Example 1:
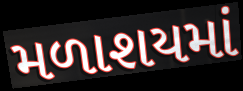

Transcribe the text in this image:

મળાશયમાં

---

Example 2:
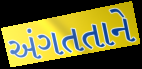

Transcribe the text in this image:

અંગતતાને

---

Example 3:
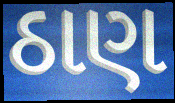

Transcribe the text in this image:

ઠાણ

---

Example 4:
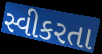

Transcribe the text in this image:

સ્વીકરતા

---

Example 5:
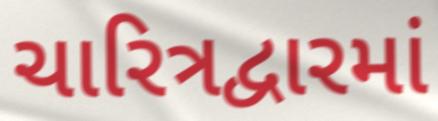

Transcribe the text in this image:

ચારિત્રદ્વારમાં